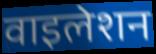
वाइलेशन